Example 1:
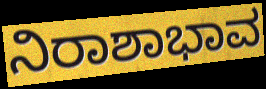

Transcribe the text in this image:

ನಿರಾಶಾಭಾವ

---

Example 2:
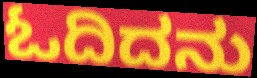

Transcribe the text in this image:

ಓದಿದನು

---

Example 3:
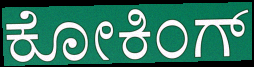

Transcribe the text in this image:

ಕೋಕಿಂಗ್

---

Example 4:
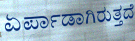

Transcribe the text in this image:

ಏರ್ಪಾಡಾಗಿರುತ್ತದೆ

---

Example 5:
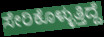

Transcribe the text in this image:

ಸೇರಿಕೊಳ್ಳುತ್ತಿದ್ದೆ